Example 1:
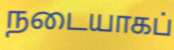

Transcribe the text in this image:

நடையாகப்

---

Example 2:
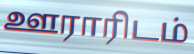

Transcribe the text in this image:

ஊராரிடம்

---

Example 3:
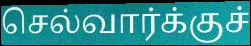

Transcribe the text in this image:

செல்வார்க்குச்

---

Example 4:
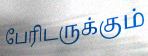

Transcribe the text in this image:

பேரிடருக்கும்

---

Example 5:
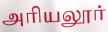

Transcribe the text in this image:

அரியலூர்